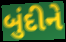
બુંદીને